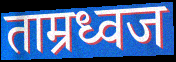
ताम्रध्वज